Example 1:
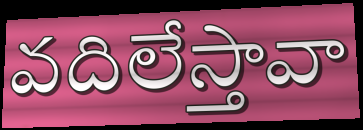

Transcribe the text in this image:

వదిలేస్తావా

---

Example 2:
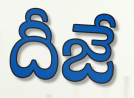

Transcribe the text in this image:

దీజే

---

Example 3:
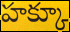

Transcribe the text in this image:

హక్కూ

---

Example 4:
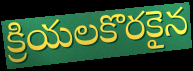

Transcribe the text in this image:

క్రియలకొరకైన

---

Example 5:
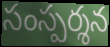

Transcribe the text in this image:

సంస్పర్శన